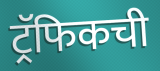
ट्रॅफिकची